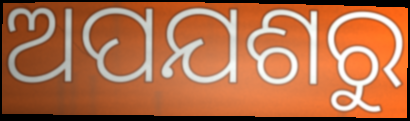
ଅପଯଶରୁ